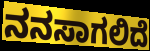
ನನಸಾಗಲಿದೆ